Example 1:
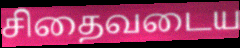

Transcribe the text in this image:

சிதைவடைய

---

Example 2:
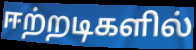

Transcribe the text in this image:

ஈற்றடிகளில்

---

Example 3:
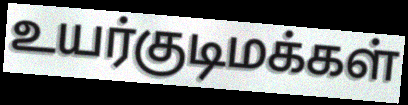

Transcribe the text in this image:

உயர்குடிமக்கள்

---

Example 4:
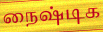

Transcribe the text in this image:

நைஷ்டிக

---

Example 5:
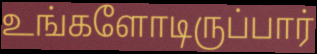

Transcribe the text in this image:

உங்களோடிருப்பார்